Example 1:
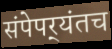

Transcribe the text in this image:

संपेपर्यंतच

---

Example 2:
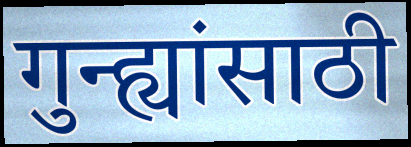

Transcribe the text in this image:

गुन्ह्यांसाठी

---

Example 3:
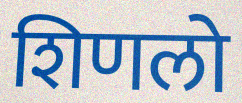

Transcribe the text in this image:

शिणलो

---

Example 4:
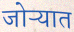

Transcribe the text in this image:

जोऱ्यात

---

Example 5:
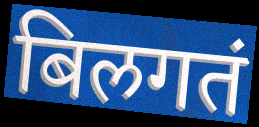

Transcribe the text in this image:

बिलगतं